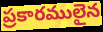
ప్రకారములైన